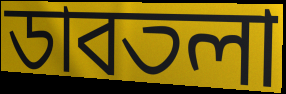
ডাবতলা